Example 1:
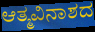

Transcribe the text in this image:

ಆತ್ಮವಿನಾಶದ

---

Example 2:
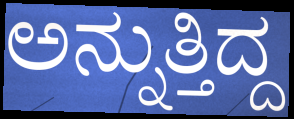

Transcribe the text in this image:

ಅನ್ನುತ್ತಿದ್ದ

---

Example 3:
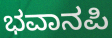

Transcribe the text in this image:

ಭವಾನಪಿ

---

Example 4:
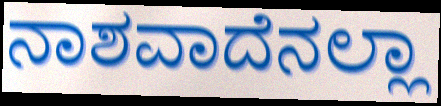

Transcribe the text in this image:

ನಾಶವಾದೆನಲ್ಲಾ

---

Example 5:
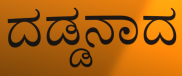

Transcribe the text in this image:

ದಡ್ಡನಾದ